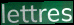
lettres